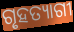
ଗୃହତ୍ୟାଗୀ